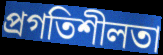
প্রগতিশীলতা